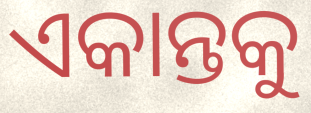
ଏକାନ୍ତକୁ